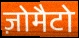
ज़ोमैटो